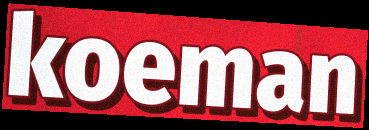
koeman